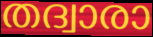
തദ്വാരാ